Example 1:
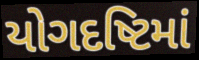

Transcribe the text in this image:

યોગદષ્ટિમાં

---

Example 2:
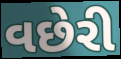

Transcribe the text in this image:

વછેરી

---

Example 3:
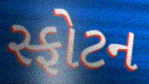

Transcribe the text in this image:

સ્ફોટન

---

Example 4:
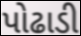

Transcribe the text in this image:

પોઢાડી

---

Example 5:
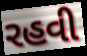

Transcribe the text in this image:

રહવી